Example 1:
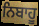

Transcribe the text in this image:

ਨਿਬਾਹੂ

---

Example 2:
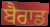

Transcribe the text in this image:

ਬੈਰਾਡ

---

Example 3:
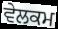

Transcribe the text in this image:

ਵੇਲਕਮ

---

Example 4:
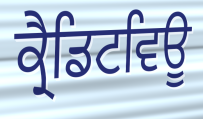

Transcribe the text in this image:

ਕ੍ਰੈਡਿਟਵਿਊ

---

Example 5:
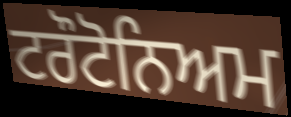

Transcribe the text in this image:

ਟਰੌਟੋਨਿਅਮ